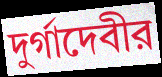
দুর্গাদেবীর